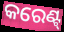
କରେଣ୍ଟ୍